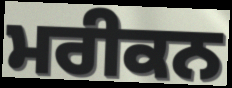
ਮਰੀਕਨ